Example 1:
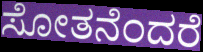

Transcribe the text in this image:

ಸೋತನೆಂದರೆ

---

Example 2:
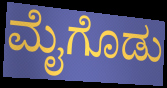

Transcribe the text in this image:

ಮೈಗೊಡು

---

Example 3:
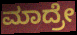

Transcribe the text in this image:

ಮಾದ್ರೇ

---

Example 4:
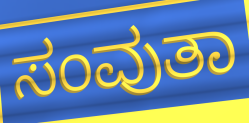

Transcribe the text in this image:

ಸಂವುತಾ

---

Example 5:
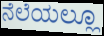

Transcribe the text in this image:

ನೆಲೆಯಲ್ಲೂ